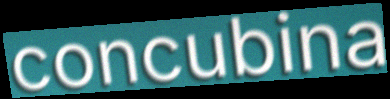
concubina